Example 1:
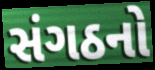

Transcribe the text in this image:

સંગઠનો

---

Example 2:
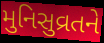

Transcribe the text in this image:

મુનિસુવ્રતને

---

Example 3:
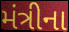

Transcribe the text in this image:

મંત્રીના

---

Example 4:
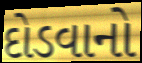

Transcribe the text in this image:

દોડવાનો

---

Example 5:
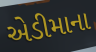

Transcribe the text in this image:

એડીમાના